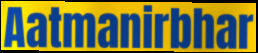
Aatmanirbhar